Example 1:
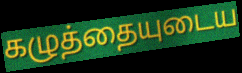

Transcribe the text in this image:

கழுத்தையுடைய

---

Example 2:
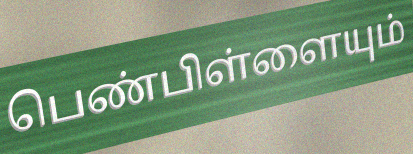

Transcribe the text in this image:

பெண்பிள்ளையும்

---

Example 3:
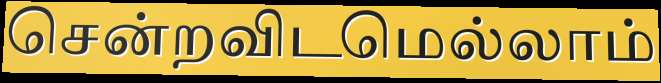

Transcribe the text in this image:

சென்றவிடமெல்லாம்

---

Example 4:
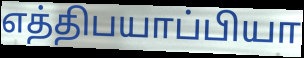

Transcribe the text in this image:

எத்திபயாப்பியா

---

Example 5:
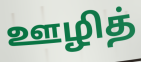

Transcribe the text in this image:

ஊழித்